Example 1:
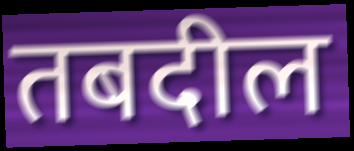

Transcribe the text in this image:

तबदील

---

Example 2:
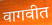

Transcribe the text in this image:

वागवीत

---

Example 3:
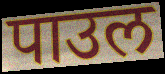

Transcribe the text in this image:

पाउल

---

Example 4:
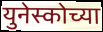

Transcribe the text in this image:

युनेस्कोच्या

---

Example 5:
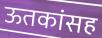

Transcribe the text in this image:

ऊतकांसह